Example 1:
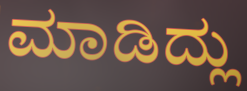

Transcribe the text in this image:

ಮಾಡಿದ್ಲು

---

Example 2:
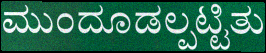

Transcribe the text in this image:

ಮುಂದೂಡಲ್ಪಟ್ಟಿತು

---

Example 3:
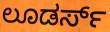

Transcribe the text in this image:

ಲೂಡರ್ಸ್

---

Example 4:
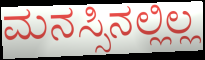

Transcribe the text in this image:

ಮನಸ್ಸಿನಲ್ಲಿಲ್ಲ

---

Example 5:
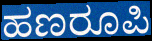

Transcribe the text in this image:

ಹಣರೂಪಿ